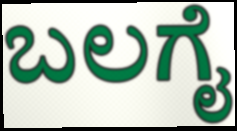
ಬಲಗೈ